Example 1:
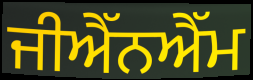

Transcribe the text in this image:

ਜੀਐੱਨਐੱਮ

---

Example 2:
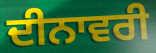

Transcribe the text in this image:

ਦੀਨਾਵਰੀ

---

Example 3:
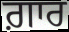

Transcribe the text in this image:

ਗ਼ਾਰ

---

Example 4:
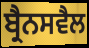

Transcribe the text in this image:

ਬ੍ਰੈਨਸਵੈਲ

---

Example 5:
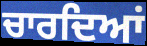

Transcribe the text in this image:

ਚਾਰਦਿਆਂ